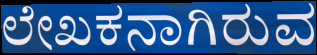
ಲೇಖಕನಾಗಿರುವ